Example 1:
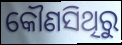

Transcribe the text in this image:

କୌଣସିଥିରୁ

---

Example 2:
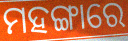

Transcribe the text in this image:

ମହଙ୍ଗାରେ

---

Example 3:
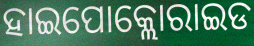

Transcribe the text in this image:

ହାଇପୋକ୍ଲୋରାଇଡ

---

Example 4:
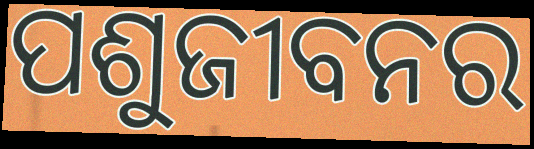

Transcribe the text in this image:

ପଶୁଜୀବନର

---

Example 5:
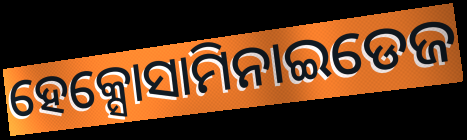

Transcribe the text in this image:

ହେକ୍ସୋସାମିନାଇଡେଜ